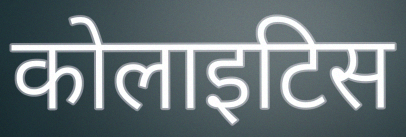
कोलाइटिस